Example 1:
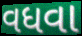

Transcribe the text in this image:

વધવા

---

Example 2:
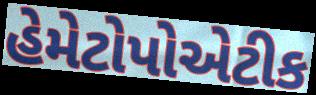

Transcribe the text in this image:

હેમેટોપોએટીક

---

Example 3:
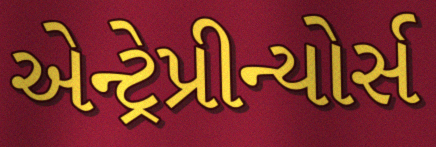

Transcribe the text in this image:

એન્ટ્રેપ્રીન્યોર્સ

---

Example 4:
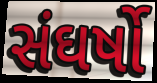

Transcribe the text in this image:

સંઘર્ષો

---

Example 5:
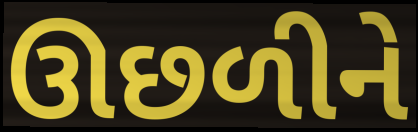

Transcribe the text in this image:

ઊછળીને